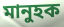
মানুহক